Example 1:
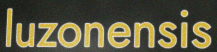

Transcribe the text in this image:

luzonensis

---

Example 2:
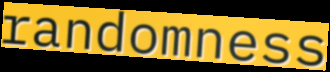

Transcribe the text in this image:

randomness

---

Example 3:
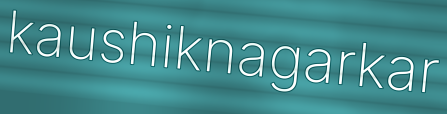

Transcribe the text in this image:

kaushiknagarkar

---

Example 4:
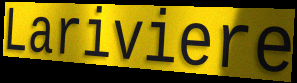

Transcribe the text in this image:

Lariviere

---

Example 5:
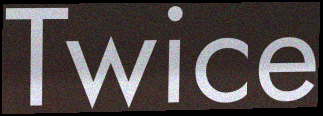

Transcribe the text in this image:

Twice